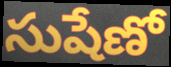
సుషేణో